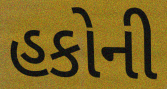
હકોની